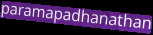
paramapadhanathan